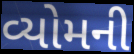
વ્યોમની